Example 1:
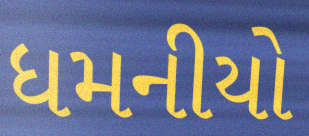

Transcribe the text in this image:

ધમનીયો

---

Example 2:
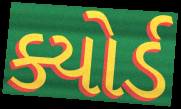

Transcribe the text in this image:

ક્યોર્ડ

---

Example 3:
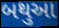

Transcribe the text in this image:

બથુઆ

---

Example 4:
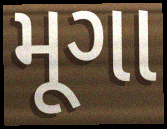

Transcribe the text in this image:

મૂગા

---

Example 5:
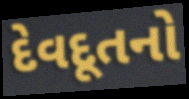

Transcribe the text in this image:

દેવદૂતનો